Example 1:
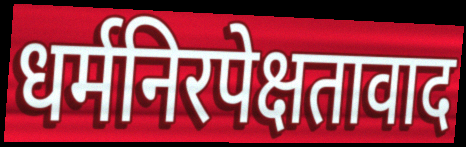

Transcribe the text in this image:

धर्मनिरपेक्षतावाद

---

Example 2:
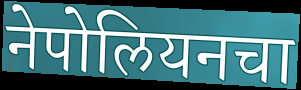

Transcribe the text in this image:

नेपोलियनचा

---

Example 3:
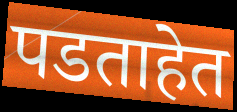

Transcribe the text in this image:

पडताहेत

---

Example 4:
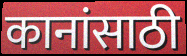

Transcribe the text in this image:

कानांसाठी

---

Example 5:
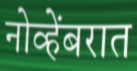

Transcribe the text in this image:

नोव्हेंबरात